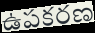
ఉపకరణ